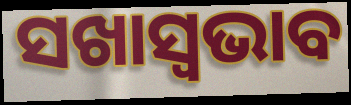
ସଖାସ୍ୱଭାବ